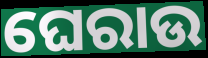
ଘେରାଉ